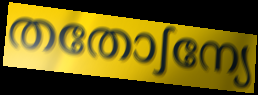
തതോഽന്യേ